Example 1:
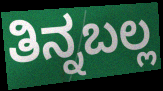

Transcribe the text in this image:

ತಿನ್ನಬಲ್ಲ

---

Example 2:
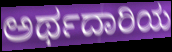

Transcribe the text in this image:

ಅರ್ಥದಾರಿಯ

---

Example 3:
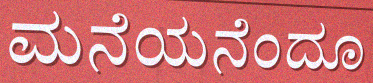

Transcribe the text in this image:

ಮನೆಯನೆಂದೂ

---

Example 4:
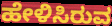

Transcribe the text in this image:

ಹೇಳಿಸಿರುವ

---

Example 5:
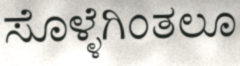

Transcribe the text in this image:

ಸೊಳ್ಳೆಗಿಂತಲೂ